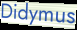
Didymus